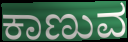
ಕಾಣುವ